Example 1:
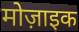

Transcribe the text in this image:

मोज़ाइक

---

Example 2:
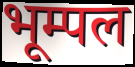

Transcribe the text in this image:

भूम्पल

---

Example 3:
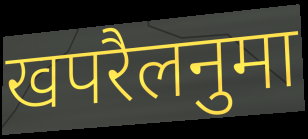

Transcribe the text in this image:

खपरैलनुमा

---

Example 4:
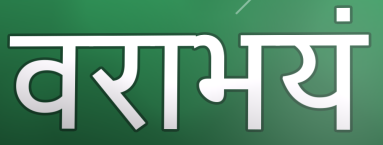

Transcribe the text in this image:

वराभयं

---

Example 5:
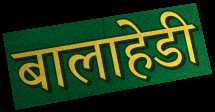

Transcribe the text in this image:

बालाहेडी